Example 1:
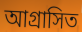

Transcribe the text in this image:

আগ্রাসিত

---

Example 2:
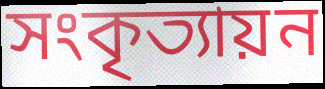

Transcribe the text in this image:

সংকৃত্যায়ন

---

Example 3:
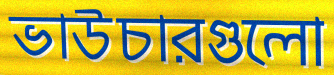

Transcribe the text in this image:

ভাউচারগুলো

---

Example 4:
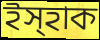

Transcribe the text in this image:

ইস্‌হাক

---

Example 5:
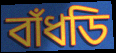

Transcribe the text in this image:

বাঁধডি